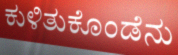
ಕುಳಿತುಕೊಂಡೆನು